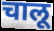
चालू